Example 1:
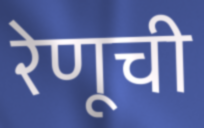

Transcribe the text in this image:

रेणूची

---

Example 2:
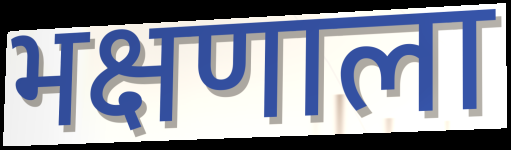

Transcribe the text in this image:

भक्षणाला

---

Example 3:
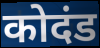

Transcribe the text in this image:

कोदंड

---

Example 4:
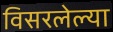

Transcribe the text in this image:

विसरलेल्या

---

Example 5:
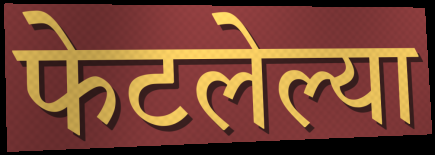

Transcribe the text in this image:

फेटलेल्या